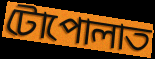
টোপোলাত